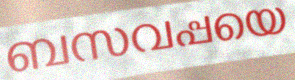
ബസവപ്പയെ